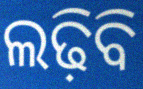
ଲଢ଼ିବି